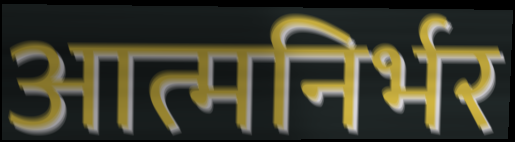
आत्मनिर्भर